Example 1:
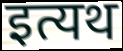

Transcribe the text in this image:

इत्यथ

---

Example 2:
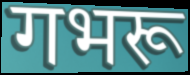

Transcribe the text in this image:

गभरू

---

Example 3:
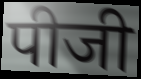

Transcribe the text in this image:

पीजी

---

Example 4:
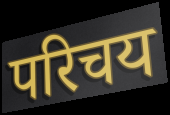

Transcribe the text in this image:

परिचय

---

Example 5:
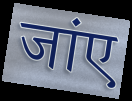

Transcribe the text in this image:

जांए